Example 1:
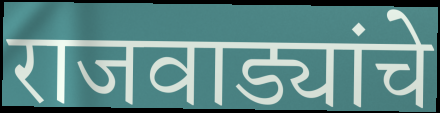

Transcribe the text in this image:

राजवाड्यांचे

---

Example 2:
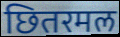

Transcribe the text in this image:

छितरमल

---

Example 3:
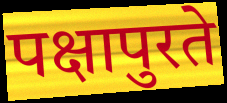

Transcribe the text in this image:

पक्षापुरते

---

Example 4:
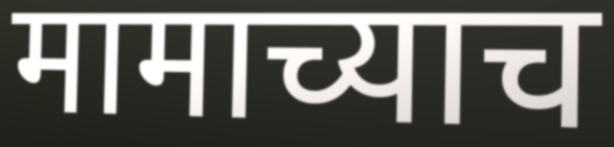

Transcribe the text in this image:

मामाच्याच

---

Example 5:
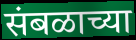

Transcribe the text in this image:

संबळाच्या